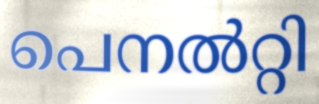
പെനൽറ്റി